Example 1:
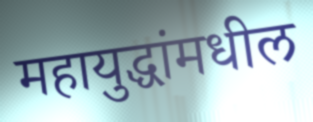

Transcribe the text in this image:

महायुद्धांमधील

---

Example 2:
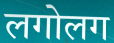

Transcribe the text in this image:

लगोलग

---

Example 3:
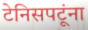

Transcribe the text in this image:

टेनिसपटूंना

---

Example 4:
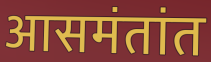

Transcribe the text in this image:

आसमंतांत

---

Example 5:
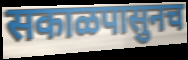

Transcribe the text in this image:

सकाळपासुनच